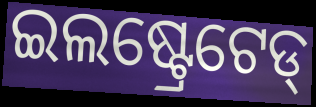
ଇଲଷ୍ଟ୍ରେଟେଡ୍